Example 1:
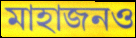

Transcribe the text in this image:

মাহাজনও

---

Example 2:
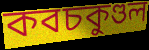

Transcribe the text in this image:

কবচকুণ্ডল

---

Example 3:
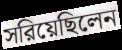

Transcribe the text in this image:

সরিয়েছিলেন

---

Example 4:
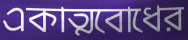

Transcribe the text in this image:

একাত্মবোধের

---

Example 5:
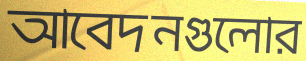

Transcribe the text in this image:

আবেদনগুলোর